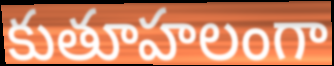
కుతూహలంగా